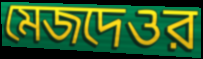
মেজদেওর